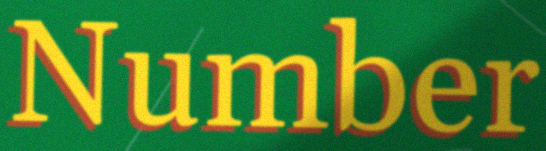
Number